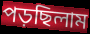
পড়ছিলাম